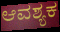
ಆವಶ್ಯಕ